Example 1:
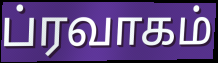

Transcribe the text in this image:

ப்ரவாகம்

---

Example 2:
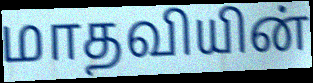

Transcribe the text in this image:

மாதவியின்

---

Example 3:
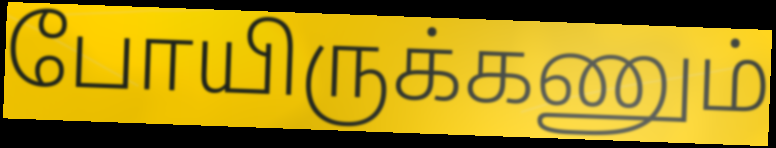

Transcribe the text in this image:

போயிருக்கணும்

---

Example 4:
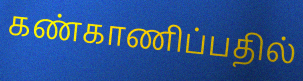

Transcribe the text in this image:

கண்காணிப்பதில்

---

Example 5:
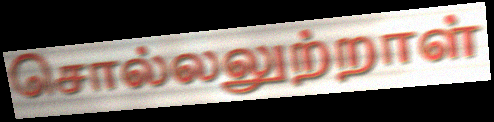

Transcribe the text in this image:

சொல்லலுற்றாள்